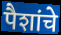
पैशांचे